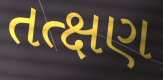
તત્ક્ષણ